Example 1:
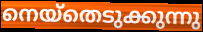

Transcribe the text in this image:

നെയ്തെടുക്കുന്നു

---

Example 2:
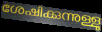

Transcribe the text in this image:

ശേഷിക്കുന്നുള്ളു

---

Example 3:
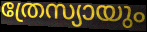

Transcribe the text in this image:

ത്രേസ്യായും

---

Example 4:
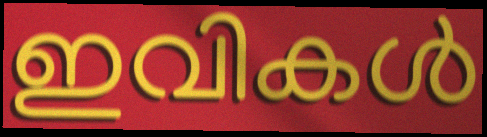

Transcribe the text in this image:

ഇവികൾ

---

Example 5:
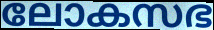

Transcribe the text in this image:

ലോകസഭ